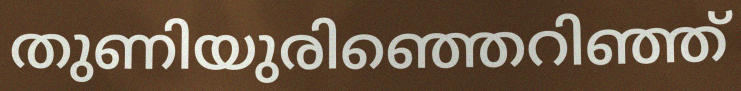
തുണിയുരിഞ്ഞെറിഞ്ഞ്